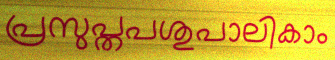
പ്രസുപ്തപശുപാലികാം